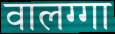
वालग्गा